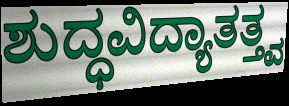
ಶುದ್ಧವಿದ್ಯಾತತ್ತ್ವ